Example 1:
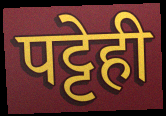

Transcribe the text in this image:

पट्टेही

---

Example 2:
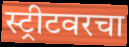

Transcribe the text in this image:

स्ट्रीटवरचा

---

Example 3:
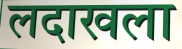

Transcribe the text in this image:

लदाखला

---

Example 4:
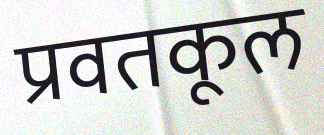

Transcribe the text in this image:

प्रवतकूल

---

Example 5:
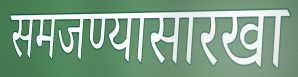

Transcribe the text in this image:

समजण्यासारखा